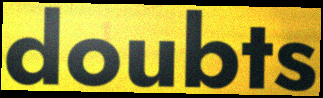
doubts